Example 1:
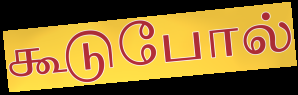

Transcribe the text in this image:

கூடுபோல்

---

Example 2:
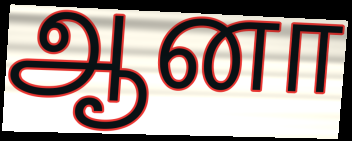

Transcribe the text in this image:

ஆனா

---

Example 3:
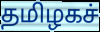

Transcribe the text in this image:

தமிழகச்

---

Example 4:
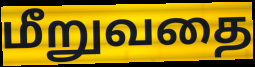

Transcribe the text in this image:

மீறுவதை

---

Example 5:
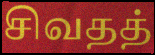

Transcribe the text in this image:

சிவதத்